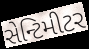
સેન્ટિમીટર